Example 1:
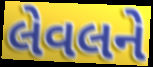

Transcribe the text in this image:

લેવલને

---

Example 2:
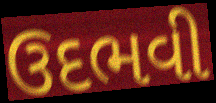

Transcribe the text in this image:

ઉદભવી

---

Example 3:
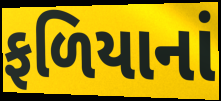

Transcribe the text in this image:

ફળિયાનાં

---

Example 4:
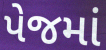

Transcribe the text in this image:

પેજમાં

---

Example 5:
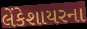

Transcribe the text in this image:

લેંકેશાયરના